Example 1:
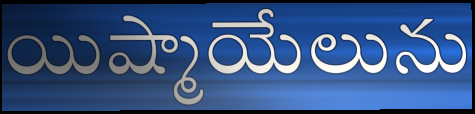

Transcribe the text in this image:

యిష్మాయేలును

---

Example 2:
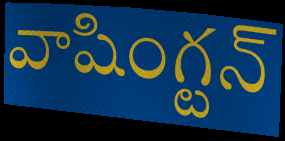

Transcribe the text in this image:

వాషింగ్టన్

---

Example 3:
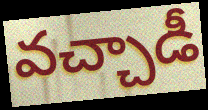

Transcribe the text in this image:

వచ్చాడీ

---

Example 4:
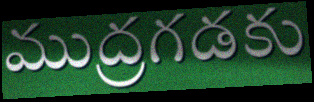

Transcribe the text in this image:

ముద్రగడకు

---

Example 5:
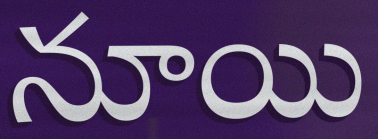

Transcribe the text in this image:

నూయి